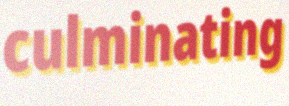
culminating